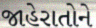
જાહેરાતોને